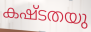
കഷ്ടതയു